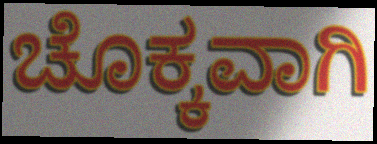
ಚೊಕ್ಕವಾಗಿ